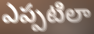
ఎప్పటిలా